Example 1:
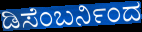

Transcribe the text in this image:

ಡಿಸೆಂಬರ್ನಿಂದ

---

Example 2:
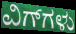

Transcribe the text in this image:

ವಿಗ್‌ಗಳು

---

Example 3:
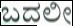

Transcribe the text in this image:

ಬದಲೀ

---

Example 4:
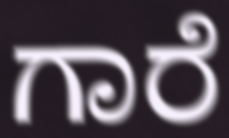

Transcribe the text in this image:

ಗಾರೆ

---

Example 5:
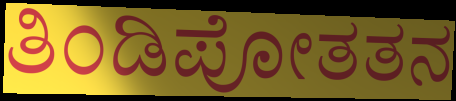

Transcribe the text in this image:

ತಿಂಡಿಪೋತತನ